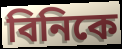
বিনিকে